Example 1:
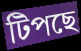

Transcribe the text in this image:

টিপছে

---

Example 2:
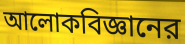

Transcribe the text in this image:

আলোকবিজ্ঞানের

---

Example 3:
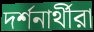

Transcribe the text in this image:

দর্শনার্থীরা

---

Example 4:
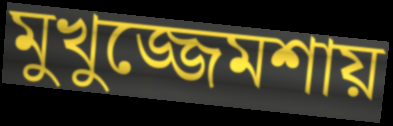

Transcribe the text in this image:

মুখুজ্জেমশায়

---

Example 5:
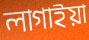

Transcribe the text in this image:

লাগাইয়া